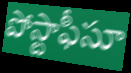
పోస్టాఫీసూ